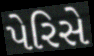
પેરિસે